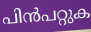
പിൻപറ്റുക